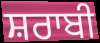
ਸ਼ਰਾਬੀ